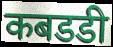
कबडडी